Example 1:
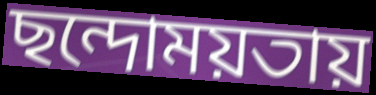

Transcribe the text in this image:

ছন্দোময়তায়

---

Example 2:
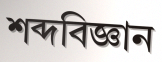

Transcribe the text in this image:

শব্দবিজ্ঞান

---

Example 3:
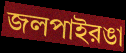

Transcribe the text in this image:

জলপাইরঙা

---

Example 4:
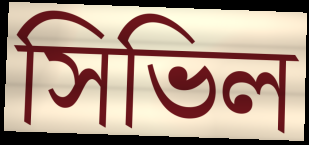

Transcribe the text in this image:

সিভিল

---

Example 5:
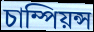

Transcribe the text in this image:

চাম্পিয়ন্স